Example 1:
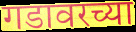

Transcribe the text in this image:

गडावरच्या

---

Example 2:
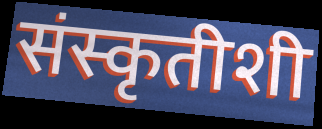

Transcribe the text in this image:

संस्कृतीशी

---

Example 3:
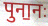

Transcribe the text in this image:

पुना॒नः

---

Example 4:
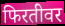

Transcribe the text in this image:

फिरतीवर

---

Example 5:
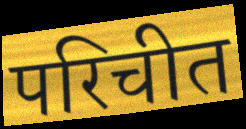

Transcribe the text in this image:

परिचीत